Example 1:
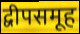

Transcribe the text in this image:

द्वीपसमूह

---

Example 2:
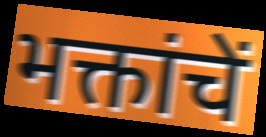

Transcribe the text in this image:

भक्तांचें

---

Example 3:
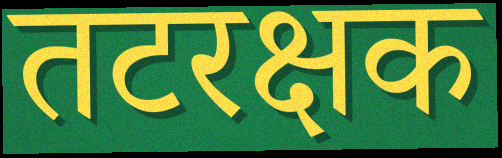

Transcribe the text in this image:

तटरक्षक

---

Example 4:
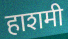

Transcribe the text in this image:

हाशमी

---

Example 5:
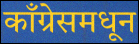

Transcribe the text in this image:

काँग्रेसमधून